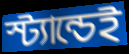
স্ট্যান্ডেই